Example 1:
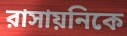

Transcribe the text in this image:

রাসায়নিকে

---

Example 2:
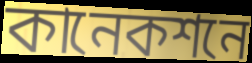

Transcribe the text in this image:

কানেকশনে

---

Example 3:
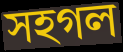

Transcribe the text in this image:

সহগল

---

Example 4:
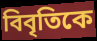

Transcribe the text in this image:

বিবৃতিকে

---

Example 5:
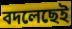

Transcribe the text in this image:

বদলেছেই